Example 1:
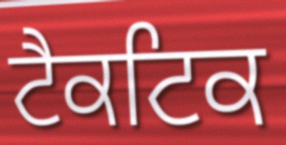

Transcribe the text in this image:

ਟੈਕਟਿਕ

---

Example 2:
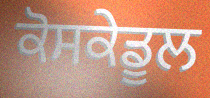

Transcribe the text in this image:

ਕੋਸਕੇਡੂਲ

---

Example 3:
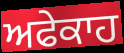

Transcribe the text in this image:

ਅਫੇਕਾਹ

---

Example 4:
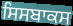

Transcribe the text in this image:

ਸਿਸਬਾਕਸ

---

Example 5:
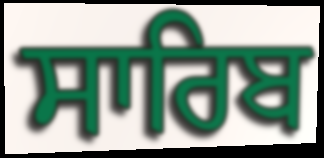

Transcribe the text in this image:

ਸਾਰਿਬ